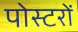
पोस्‍टरों